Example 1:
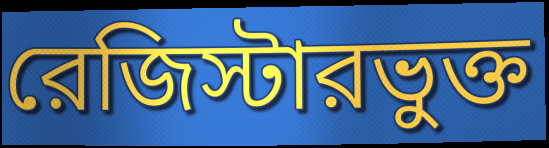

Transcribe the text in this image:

রেজিস্টারভুক্ত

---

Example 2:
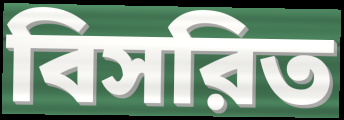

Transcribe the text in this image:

বিসরিত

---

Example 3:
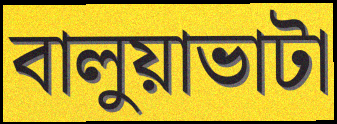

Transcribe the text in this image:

বালুয়াভাটা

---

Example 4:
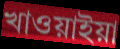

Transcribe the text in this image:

খাওয়াইয়া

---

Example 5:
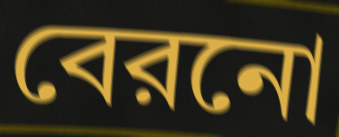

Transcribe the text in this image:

বেরনো